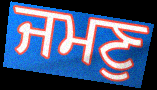
ਜਮਣੁ